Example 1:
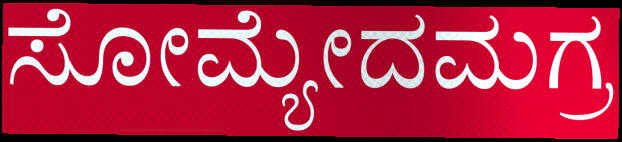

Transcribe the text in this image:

ಸೋಮ್ಯೇದಮಗ್ರ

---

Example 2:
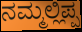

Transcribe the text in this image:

ನಮ್ಮಲ್ಲಿಪ್ಪ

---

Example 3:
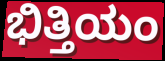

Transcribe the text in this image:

ಭಿತ್ತಿಯಂ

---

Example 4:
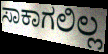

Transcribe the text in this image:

ಸಾಕಾಗಲಿಲ್ಲ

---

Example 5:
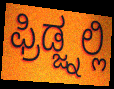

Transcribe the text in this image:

ಫ್ರಿಡ್ಜ್ನಲ್ಲಿ